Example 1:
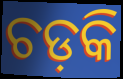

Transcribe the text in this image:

ଚଡ଼କି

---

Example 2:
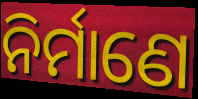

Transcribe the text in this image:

ନିର୍ମାଣେ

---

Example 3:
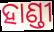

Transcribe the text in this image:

ହାଣ୍ଡୀ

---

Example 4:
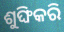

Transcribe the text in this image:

ଶୁଙ୍ଘିକରି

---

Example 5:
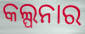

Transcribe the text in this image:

କଲ୍ପନାର